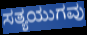
ಸತ್ಯಯುಗವು